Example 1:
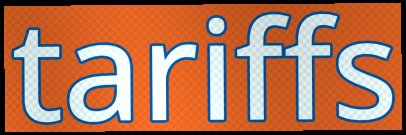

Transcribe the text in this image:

tariffs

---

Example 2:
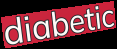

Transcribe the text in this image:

diabetic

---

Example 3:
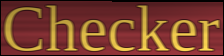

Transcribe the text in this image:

Checker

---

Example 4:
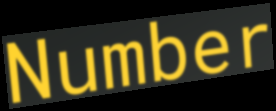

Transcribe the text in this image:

Number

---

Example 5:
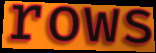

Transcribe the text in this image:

rows